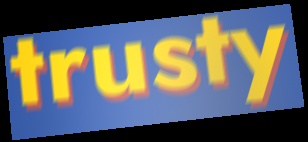
trusty